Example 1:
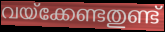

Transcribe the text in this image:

വയ്‌ക്കേണ്ടതുണ്ട്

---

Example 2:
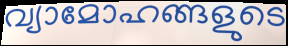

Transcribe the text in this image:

വ്യാമോഹങ്ങളുടെ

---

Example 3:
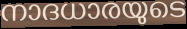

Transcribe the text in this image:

നാദധാരയുടെ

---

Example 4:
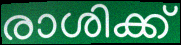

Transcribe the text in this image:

രാശിക്ക്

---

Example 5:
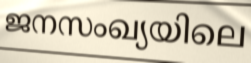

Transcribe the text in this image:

ജനസംഖ്യയിലെ